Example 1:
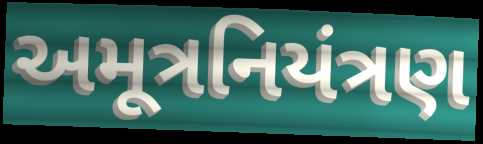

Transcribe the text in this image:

અમૂત્રનિયંત્રણ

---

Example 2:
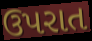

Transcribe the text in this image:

ઉપરાત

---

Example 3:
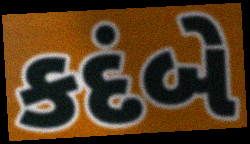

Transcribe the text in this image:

કદંબે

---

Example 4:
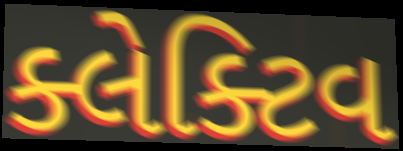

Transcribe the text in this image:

ક્લેક્ટિવ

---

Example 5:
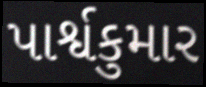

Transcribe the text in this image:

પાર્શ્વકુમાર